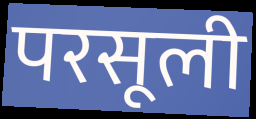
परसूली